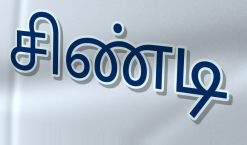
சிண்டி